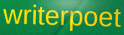
writerpoet